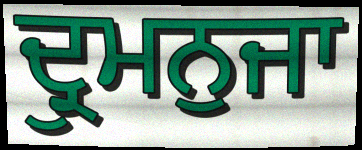
ਦ੍ਰੁਮਨੁਜਾ